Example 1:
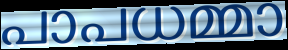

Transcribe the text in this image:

പാപധമ്മാ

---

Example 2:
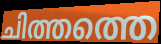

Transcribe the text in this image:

ചിത്തത്തെ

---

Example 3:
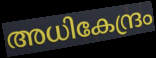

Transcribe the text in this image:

അധികേന്ദ്രം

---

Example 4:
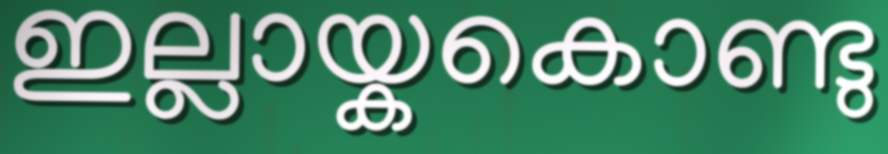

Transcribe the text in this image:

ഇല്ലായ്കകൊണ്ടു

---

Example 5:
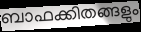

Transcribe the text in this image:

ബാഫക്കിതങ്ങളും